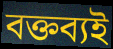
বক্তব্যই